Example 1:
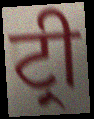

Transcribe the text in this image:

ਟ੍ਰੀ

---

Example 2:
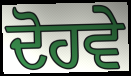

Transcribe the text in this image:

ਦੋਹਵੇ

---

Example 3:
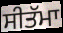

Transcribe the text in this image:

ਸੀਤੱਮਾ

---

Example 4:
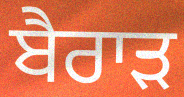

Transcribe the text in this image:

ਬੈਰਾੜ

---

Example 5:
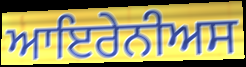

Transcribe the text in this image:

ਆਇਰੇਨੀਅਸ